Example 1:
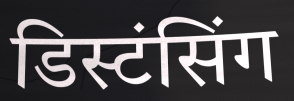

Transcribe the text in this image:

डिस्टंसिंग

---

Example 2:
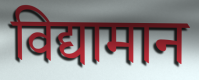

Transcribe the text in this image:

विद्यामान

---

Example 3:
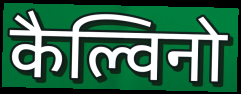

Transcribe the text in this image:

कैल्विनो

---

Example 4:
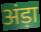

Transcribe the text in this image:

अंड़ा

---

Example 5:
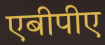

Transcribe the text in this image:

एबीपीए